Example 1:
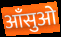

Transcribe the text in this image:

आँसुओ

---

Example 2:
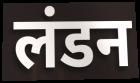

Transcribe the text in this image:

लंडन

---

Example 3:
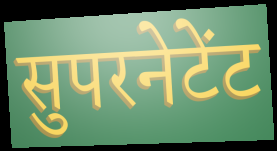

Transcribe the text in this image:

सुपरनेटेंट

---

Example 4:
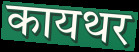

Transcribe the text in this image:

कायथर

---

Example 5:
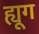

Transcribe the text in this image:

ह्यूग